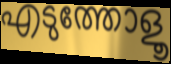
എടുത്തോളൂ